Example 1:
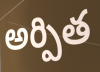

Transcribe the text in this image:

అర్పిత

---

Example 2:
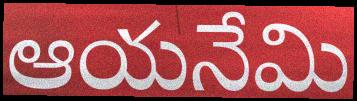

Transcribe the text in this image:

ఆయనేమి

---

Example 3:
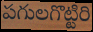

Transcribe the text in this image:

పగులగొట్టిరి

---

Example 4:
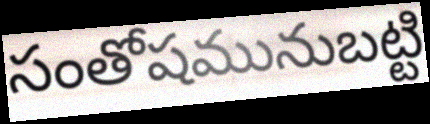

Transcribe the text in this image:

సంతోషమునుబట్టి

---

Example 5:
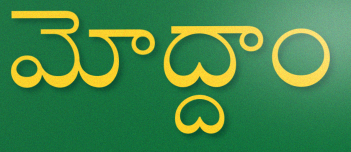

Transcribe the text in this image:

మోద్దాం